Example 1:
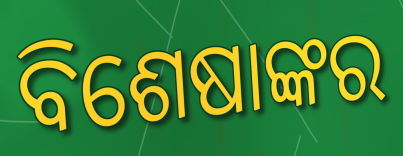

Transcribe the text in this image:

ବିଶେଷାଙ୍କର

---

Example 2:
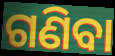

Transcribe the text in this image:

ଗଣିବା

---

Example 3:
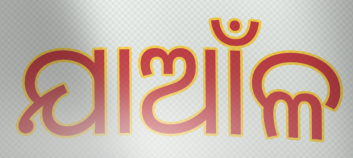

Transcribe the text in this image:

ଯାଆଁଳ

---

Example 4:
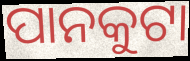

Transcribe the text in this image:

ପାନକୁଟା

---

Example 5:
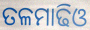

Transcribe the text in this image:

ତଳମାଢିଓ